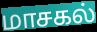
மாசகல்